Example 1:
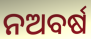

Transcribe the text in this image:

ନଅବର୍ଷ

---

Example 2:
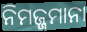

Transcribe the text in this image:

ନିମଜ୍ଜମାନା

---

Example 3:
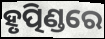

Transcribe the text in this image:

ହୃତ୍ପିଣ୍ଡରେ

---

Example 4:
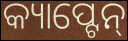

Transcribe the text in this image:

କ୍ୟାପ୍ଟେନ୍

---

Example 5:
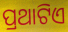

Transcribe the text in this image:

ପ୍ରଥାଟିଏ